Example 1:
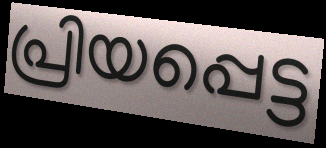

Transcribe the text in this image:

പ്രിയപ്പെട്ട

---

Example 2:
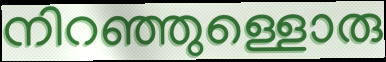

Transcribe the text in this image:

നിറഞ്ഞുള്ളൊരു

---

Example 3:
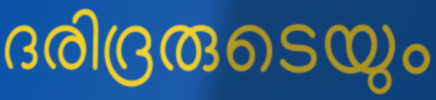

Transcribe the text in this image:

ദരിദ്രരുടെയും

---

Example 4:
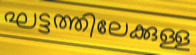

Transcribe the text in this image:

ഘട്ടത്തിലേക്കുള്ള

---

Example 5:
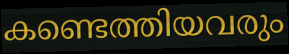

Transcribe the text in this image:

കണ്ടെത്തിയവരും